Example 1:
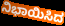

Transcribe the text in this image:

ನಿಭಾಯಿಸಿದ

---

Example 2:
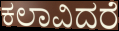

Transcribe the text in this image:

ಕಲಾವಿದರೆ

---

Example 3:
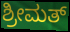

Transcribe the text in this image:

ಶ್ರೀಮತ್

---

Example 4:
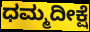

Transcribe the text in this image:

ಧಮ್ಮದೀಕ್ಷೆ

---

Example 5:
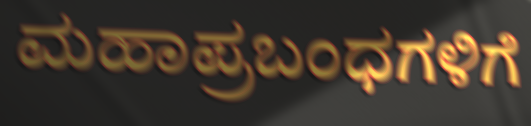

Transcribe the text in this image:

ಮಹಾಪ್ರಬಂಧಗಳಿಗೆ